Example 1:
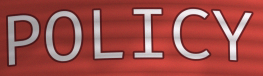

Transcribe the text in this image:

POLICY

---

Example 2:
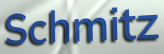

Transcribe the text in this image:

Schmitz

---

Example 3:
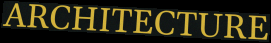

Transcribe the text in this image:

ARCHITECTURE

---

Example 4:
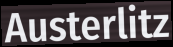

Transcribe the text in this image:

Austerlitz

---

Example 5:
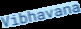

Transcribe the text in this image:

Vibhavana